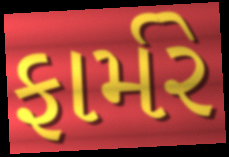
ફાર્મરે